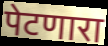
पेटणारा